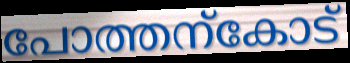
പോത്തന്കോട്